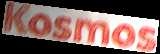
Kosmos